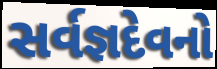
સર્વજ્ઞદેવનો